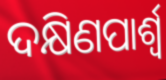
ଦକ୍ଷିଣପାର୍ଶ୍ବ